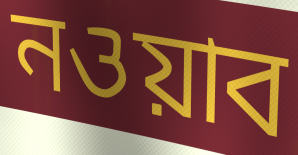
নওয়াব